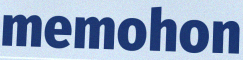
memohon